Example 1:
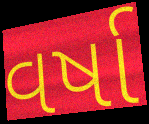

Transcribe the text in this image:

વર્ષા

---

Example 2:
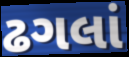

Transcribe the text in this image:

ઢગલાં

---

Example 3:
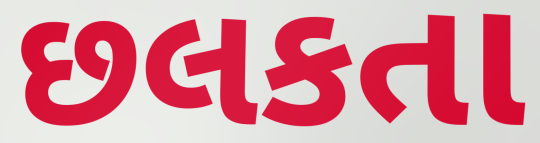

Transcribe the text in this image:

છલકતા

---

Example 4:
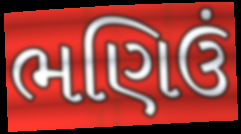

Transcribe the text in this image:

ભણિઉં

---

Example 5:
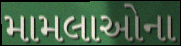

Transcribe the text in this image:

મામલાઓના